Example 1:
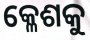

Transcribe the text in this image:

କ୍ଳେଶକୁ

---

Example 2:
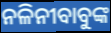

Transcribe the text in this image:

ନଳିନୀବାବୁଙ୍କ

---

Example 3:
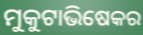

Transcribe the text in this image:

ମୁକୁଟାଭିଷେକର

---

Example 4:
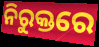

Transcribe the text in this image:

ନିରୁକ୍ତରେ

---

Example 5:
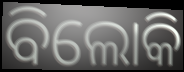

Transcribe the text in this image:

ବିଲୋକି